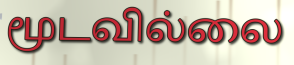
மூடவில்லை